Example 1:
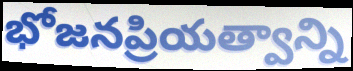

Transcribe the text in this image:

భోజనప్రియత్వాన్ని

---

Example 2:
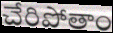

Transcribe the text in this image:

చేరిపోతాం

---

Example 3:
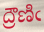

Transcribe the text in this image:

ద్రౌణిఁ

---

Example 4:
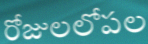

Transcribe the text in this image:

రోజులలోపల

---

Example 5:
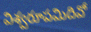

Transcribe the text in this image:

విశ్వరూపమిదివో